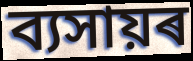
ব্যসায়ৰ